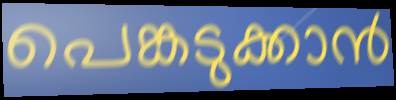
പെങ്കടുക്കാൻ